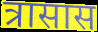
त्रासास